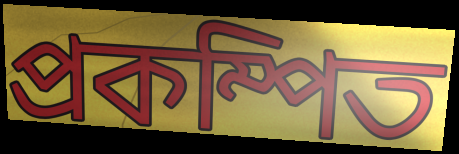
প্রকম্পিত